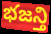
భజన్తి